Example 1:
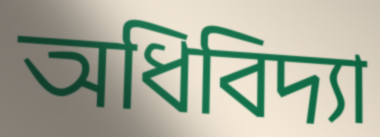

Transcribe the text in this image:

অধিবিদ্যা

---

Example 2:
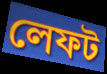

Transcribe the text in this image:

লেফট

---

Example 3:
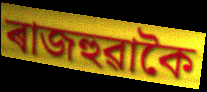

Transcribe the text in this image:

ৰাজহুৱাকৈ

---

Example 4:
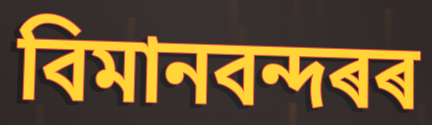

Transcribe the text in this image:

বিমানবন্দৰৰ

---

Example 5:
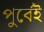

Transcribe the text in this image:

পুৰ্বেই